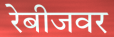
रेबीजवर